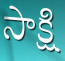
సాక్షి